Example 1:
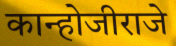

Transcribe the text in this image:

कान्होजीराजे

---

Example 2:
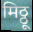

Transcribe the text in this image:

मिठ्ठू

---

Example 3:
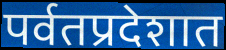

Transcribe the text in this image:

पर्वतप्रदेशात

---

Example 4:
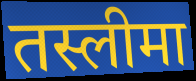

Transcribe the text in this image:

तस्लीमा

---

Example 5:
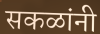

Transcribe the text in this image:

सकळांनी